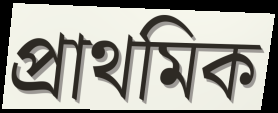
প্রাথমিক